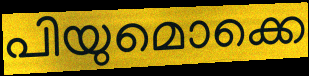
പിയുമൊക്കെ